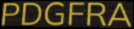
PDGFRA